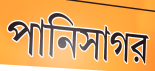
পানিসাগর